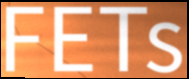
FETs